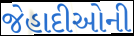
જેહાદીઓની